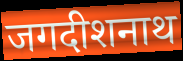
जगदीशनाथ